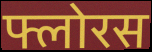
फ्लोरस